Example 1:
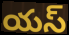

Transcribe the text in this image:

యస్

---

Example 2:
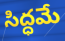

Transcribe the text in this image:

సిద్ధమే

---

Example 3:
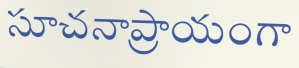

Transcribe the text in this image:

సూచనాప్రాయంగా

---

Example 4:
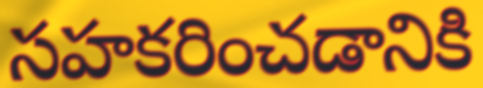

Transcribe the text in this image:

సహకరించడానికి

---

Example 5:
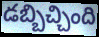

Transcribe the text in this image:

డబ్బిచ్చింది